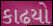
કાઢયો